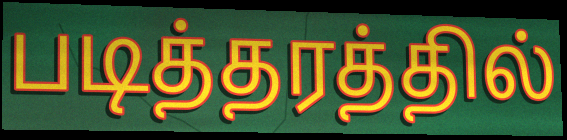
படித்தரத்தில்